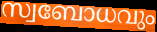
സ്വബോധവും